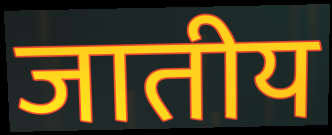
जातीय